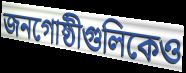
জনগোষ্ঠীগুলিকেও